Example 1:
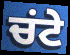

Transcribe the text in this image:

ਚਂਟੇ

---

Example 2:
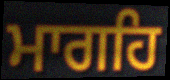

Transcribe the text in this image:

ਮਾਗਹਿ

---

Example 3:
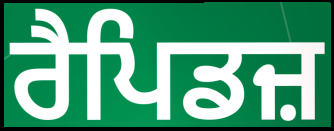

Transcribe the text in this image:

ਰੈਪਿਡਜ਼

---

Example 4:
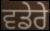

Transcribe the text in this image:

ਵਡੇਰੇ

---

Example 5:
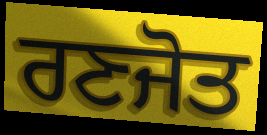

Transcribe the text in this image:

ਰਣਜੋਤ